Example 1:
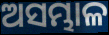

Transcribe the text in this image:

ଅସମ୍ଭାଳ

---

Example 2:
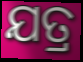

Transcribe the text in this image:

ଯତ୍ର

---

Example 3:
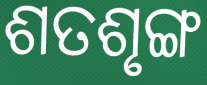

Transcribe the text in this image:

ଶତଶୃଙ୍ଗ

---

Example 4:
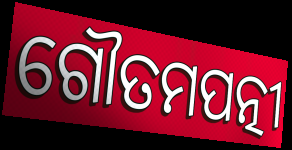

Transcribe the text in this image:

ଗୌତମପତ୍ନୀ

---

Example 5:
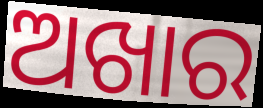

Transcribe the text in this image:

ଅଖାର